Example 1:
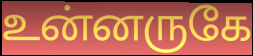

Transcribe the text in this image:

உன்னருகே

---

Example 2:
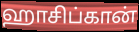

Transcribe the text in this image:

ஹாசிப்கான்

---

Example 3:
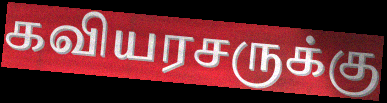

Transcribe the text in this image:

கவியரசருக்கு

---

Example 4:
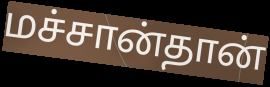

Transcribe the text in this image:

மச்சான்தான்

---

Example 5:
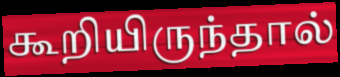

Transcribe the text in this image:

கூறியிருந்தால்